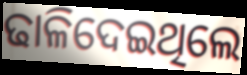
ଢାଳିଦେଇଥିଲେ